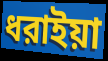
ধরাইয়া